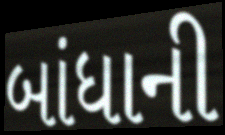
બાંધાની